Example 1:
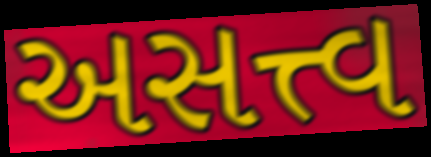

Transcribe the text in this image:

અસત્ત્વ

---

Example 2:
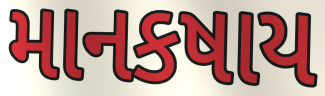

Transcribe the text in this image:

માનકષાય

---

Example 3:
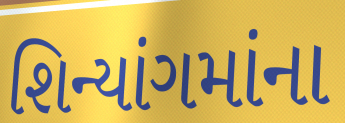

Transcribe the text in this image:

શિન્યાંગમાંના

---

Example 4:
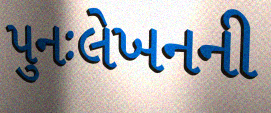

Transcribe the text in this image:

પુનઃલેખનની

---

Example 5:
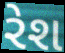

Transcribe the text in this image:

રેશ